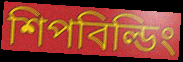
শিপবিল্ডিং